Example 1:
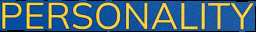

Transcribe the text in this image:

PERSONALITY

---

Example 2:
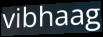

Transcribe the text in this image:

vibhaag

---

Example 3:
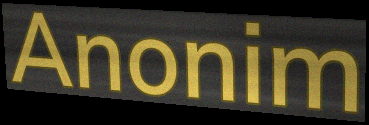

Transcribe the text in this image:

Anonim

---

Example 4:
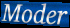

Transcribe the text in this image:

Moder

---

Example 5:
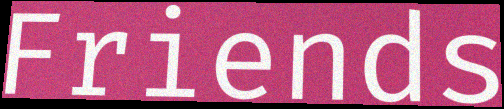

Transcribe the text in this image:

Friends